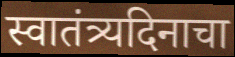
स्वातंत्र्यदिनाचा